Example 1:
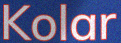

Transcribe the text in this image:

Kolar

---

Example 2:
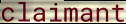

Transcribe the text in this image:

claimant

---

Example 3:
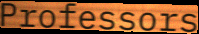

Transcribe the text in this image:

Professors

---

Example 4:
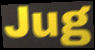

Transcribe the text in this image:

Jug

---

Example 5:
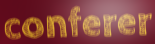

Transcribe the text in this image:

conferer